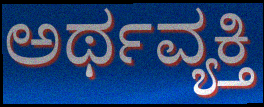
ಅರ್ಥವ್ಯಕ್ತಿ